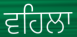
ਵਹਿਲਾ